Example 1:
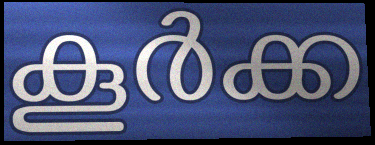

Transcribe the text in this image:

കൂർക്ക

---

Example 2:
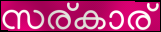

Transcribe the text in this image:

സര്കാര്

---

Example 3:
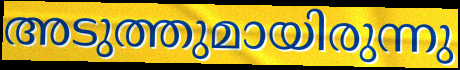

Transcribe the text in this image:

അടുത്തുമായിരുന്നു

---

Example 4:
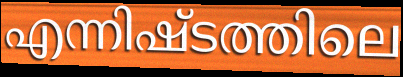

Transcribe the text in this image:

എന്നിഷ്ടത്തിലെ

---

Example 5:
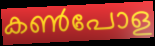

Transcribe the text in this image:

കൺപോള